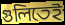
গুলিতেই